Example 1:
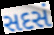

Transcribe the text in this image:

સદસં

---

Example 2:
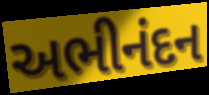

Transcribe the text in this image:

અભીનંદન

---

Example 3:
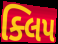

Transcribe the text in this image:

ક્લિપ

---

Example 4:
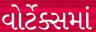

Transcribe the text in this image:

વોર્ટેક્સમાં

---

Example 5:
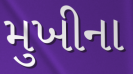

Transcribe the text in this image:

મુખીના